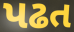
પઢત